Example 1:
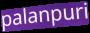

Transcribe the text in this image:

palanpuri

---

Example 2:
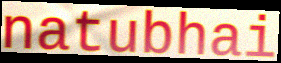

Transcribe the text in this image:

natubhai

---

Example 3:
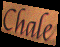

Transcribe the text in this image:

Chale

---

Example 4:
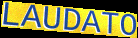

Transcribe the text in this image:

LAUDATO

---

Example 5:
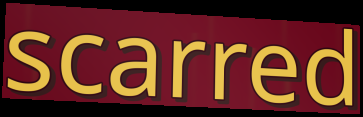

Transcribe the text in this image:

scarred